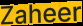
Zaheer